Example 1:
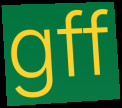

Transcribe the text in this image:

gff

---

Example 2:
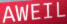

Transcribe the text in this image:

AWEIL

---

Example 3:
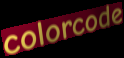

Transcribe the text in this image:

colorcode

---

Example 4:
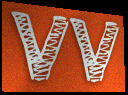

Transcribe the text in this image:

vv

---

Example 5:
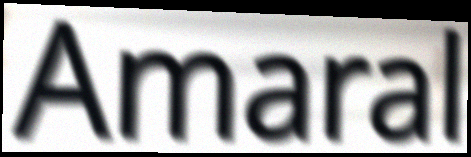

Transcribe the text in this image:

Amaral